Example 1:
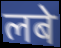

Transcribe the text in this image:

लबे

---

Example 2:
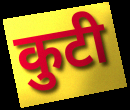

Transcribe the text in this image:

कुटी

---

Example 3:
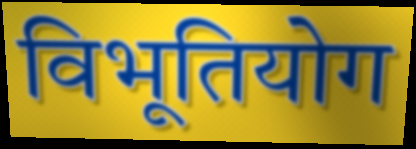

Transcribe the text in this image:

विभूतियोग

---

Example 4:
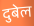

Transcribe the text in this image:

दुबेल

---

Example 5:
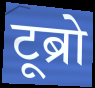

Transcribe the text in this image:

टूब्रो